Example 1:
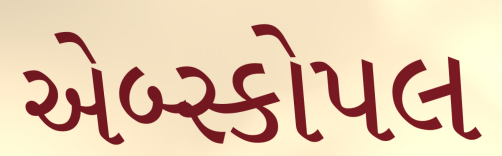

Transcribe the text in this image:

એબ્સ્કોપલ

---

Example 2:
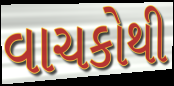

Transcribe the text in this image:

વાચકોથી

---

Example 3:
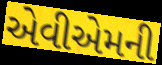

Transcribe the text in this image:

એવીએમની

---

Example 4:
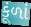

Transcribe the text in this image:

કૂંળાં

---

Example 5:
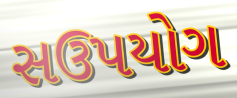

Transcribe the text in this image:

સઉપયોગ